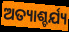
ଅତ୍ୟାଶ୍ଚର୍ଯ୍ୟ